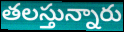
తలస్తున్నారు